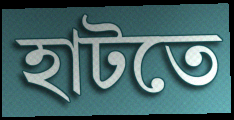
হাটতে